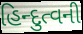
હિન્દુત્વની